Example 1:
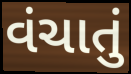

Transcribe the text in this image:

વંચાતું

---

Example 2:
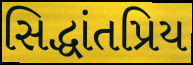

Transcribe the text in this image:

સિદ્ધાંતપ્રિય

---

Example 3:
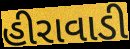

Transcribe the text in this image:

હીરાવાડી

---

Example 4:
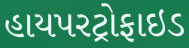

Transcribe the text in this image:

હાયપરટ્રોફાઇડ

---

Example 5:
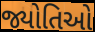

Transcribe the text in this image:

જ્યોતિઓ